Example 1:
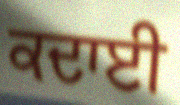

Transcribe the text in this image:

ਕਦਾਈ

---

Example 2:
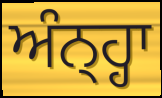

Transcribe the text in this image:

ਅੰਨ੍ਹ੍ਹਾ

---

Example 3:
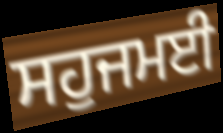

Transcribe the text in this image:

ਸਹੁਜਮਈ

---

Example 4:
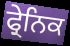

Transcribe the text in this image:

ਫ੍ਰੇਨਿਕ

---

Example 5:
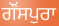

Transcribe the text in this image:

ਗੌਂਸਪੁਰਾ